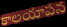
కాలయాపన